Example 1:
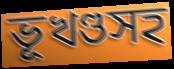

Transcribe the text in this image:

ভূখণ্ডসহ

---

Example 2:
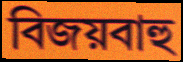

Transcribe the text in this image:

বিজয়বাহু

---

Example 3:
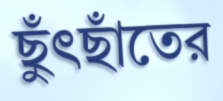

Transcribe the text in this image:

ছুঁৎছাঁতের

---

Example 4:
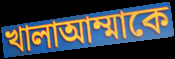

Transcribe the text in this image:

খালাআম্মাকে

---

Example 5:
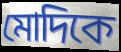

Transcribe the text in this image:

মোদিকে